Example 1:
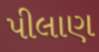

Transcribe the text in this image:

પીલાણ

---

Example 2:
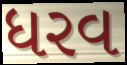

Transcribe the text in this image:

ધરવ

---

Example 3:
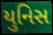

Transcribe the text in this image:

યુનિસ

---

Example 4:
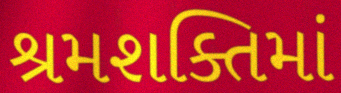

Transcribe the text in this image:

શ્રમશક્તિમાં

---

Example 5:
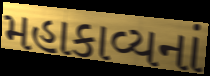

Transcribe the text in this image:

મહાકાવ્યનાં